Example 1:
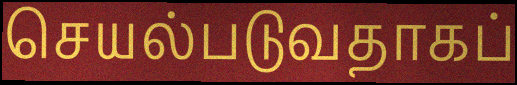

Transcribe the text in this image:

செயல்படுவதாகப்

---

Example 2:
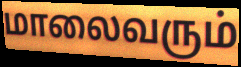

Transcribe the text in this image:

மாலைவரும்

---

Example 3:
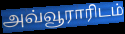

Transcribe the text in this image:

அவ்வூராரிடம்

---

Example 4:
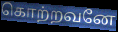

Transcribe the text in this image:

கொற்றவனே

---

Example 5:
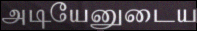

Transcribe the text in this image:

அடியேனுடைய